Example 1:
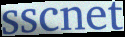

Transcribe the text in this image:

sscnet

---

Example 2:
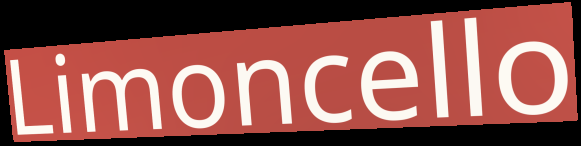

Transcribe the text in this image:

Limoncello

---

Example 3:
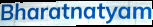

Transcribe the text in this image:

Bharatnatyam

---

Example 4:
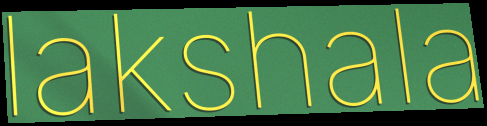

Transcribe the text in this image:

lakshala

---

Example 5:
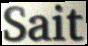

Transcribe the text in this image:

Sait